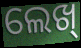
ଲେଖ୍